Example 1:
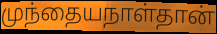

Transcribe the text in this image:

முந்தையநாள்தான்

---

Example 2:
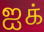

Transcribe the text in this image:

ஐக்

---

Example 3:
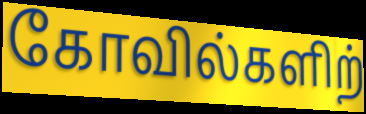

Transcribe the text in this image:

கோவில்களிற்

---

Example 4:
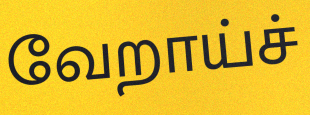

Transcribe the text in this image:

வேறாய்ச்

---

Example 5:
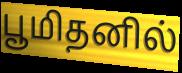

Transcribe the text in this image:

பூமிதனில்